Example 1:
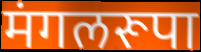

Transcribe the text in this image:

मंगलरूपा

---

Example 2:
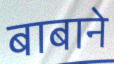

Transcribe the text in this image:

बाबाने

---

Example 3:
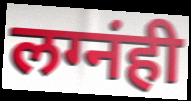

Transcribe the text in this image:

लग्नंही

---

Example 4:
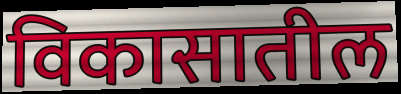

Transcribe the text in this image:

विकासातील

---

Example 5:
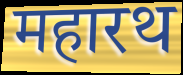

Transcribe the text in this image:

महारथ